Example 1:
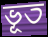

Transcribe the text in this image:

ভূত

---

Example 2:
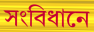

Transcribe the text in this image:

সংবিধানে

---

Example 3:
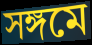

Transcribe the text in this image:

সঙ্গমে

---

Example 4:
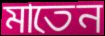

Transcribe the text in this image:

মাতেন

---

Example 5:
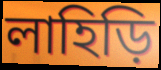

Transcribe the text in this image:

লাহিড়ি